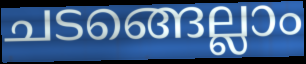
ചടങ്ങെല്ലാം